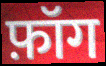
फ़ॉग